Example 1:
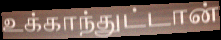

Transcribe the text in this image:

உக்காந்துட்டான்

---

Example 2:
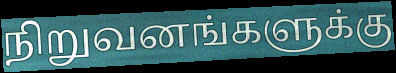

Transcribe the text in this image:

நிறுவனங்களுக்கு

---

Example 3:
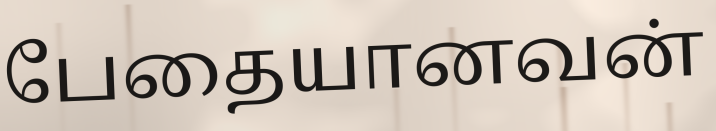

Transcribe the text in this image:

பேதையானவன்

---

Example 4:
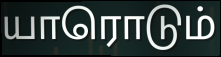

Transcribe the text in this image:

யாரொடும்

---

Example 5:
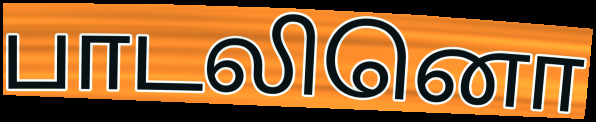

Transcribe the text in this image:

பாடலினொ